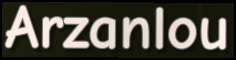
Arzanlou